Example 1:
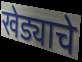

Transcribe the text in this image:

खेड्याचे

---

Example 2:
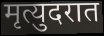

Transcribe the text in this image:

मृत्युदरात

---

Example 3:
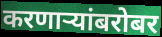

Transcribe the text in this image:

करणार्‍यांबरोबर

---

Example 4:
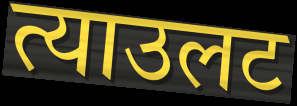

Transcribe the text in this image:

त्याउलट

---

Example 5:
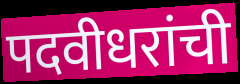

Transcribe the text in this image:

पदवीधरांची